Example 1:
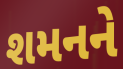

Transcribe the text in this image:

શમનને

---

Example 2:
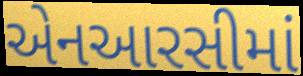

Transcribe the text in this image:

એનઆરસીમાં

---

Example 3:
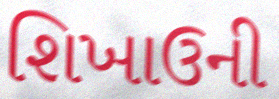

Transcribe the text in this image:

શિખાઉની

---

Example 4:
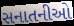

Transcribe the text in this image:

સનાતનીઓ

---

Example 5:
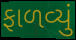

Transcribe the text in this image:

ફાળવ્યું